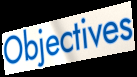
Objectives